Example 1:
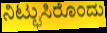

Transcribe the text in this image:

ನಿಟ್ಟುಸಿರೊಂದು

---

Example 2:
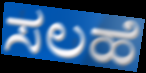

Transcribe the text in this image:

ಸಲಹೆ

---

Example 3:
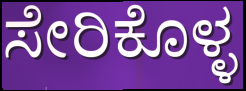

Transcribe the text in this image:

ಸೇರಿಕೊಳ್ಳ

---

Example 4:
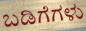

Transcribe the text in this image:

ಬಡಿಗೆಗಳು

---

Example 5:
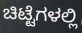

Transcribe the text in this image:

ಚಿಟ್ಟೆಗಳಲ್ಲಿ